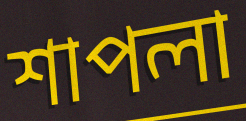
শাপলা